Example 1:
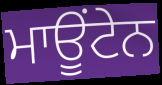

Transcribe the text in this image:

ਮਾਊਂਟੇਨ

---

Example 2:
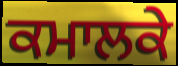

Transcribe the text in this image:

ਕਮਾਲਕੇ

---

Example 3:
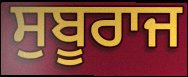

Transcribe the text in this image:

ਸੁਬੂਰਾਜ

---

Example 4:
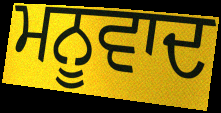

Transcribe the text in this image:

ਮਨੂਵਾਦ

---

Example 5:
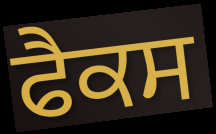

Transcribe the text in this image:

ਫੈਕਸ